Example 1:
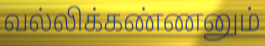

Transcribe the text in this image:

வல்லிக்கண்ணனும்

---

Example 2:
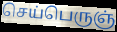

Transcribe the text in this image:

செய்பெருஞ்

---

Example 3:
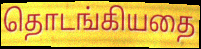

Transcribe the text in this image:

தொடங்கியதை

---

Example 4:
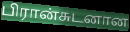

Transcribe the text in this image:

பிரான்சுடனான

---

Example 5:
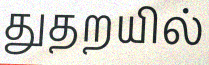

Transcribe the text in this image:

துதறயில்